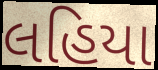
લહિયા